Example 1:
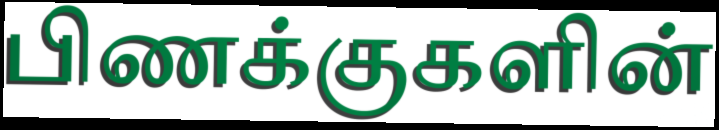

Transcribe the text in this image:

பிணக்குகளின்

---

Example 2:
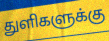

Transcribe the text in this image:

துளிகளுக்கு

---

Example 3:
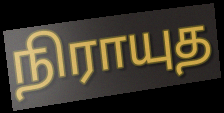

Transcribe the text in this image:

நிராயுத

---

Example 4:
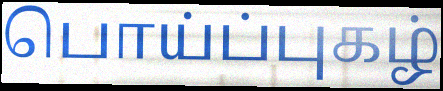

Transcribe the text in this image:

பொய்ப்புகழ்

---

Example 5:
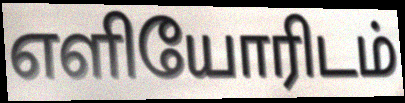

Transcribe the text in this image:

எளியோரிடம்